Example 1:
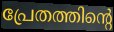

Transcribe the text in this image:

പ്രേതത്തിന്റെ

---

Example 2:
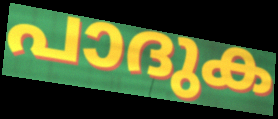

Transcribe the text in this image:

പാദുക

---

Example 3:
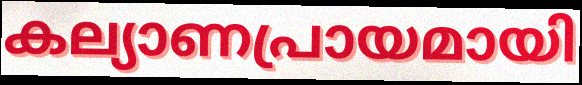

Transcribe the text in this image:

കല്യാണപ്രായമായി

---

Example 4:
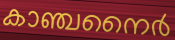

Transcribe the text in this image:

കാഞ്ചനൈർ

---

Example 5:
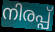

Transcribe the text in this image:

നിരപ്പ്